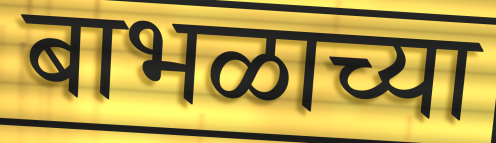
बाभळाच्या